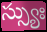
స్స్యుః